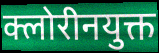
क्लोरीनयुक्त